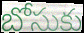
బోసుకు